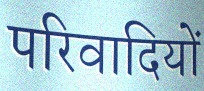
परिवादियों